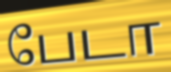
பேடா